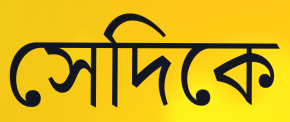
সেদিকে